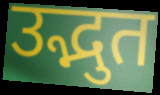
उद्भुत